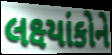
લક્ષ્યાંકોને